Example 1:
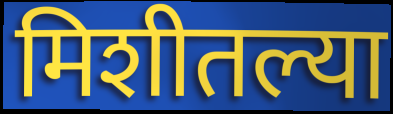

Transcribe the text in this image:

मिशीतल्या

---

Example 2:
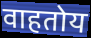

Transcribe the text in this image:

वाहतोय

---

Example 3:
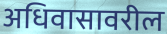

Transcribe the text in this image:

अधिवासावरील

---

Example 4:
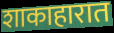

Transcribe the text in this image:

शाकाहारात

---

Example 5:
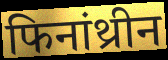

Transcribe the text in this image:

फिनांथ्रीन